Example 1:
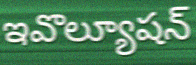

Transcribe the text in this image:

ఇవొల్యూషన్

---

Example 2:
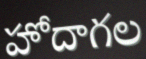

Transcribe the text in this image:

హోదాగల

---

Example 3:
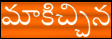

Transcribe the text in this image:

మాకిచ్చిన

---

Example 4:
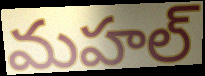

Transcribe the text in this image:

మహల్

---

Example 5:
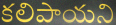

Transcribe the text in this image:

కలిపాయని